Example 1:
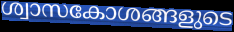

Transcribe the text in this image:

ശ്വാസകോശങ്ങളുടെ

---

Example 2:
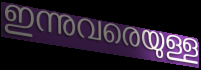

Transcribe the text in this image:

ഇന്നുവരെയുള്ള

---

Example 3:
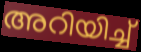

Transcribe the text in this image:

അറിയിച്ച്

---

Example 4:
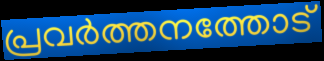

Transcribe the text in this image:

പ്രവർത്തനത്തോട്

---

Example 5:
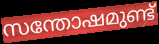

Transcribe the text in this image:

സന്തോഷമുണ്ട്